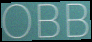
OBB